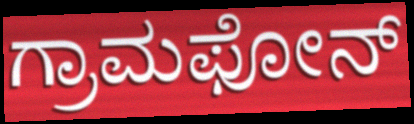
ಗ್ರಾಮಫೋನ್